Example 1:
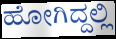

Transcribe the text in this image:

ಹೋಗಿದ್ದಲ್ಲಿ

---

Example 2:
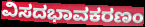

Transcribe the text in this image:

ವಿಸದಭಾವಕರಣಂ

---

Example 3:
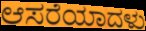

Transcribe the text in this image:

ಆಸರೆಯಾದಳು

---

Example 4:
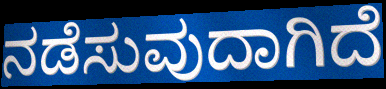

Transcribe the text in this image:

ನಡೆಸುವುದಾಗಿದೆ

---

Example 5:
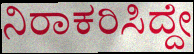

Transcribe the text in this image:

ನಿರಾಕರಿಸಿದ್ದೇ